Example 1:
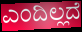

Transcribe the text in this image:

ಎಂದಿಲ್ಲದೆ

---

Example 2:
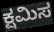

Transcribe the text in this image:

ಕ್ಷಮಿಸ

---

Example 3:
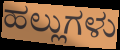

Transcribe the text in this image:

ಹಲ್ಲುಗಳು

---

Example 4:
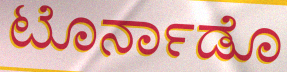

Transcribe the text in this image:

ಟೊರ್ನಾಡೊ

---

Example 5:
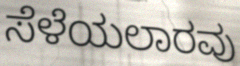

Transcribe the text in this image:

ಸೆಳೆಯಲಾರವು